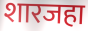
शारजहा